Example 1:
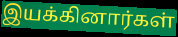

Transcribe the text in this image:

இயக்கினார்கள்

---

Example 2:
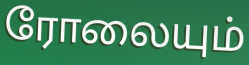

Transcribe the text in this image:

ரோலையும்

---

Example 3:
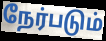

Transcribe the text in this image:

நேர்படும்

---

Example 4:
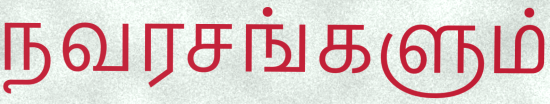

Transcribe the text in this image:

நவரசங்களும்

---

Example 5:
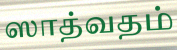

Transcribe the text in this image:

ஸாத்வதம்